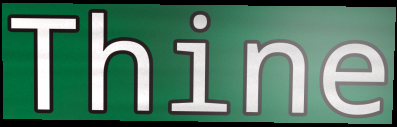
Thine